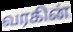
வரகின்